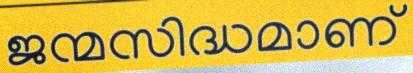
ജന്മസിദ്ധമാണ്